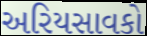
અરિયસાવકો